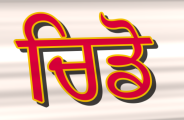
ਚਿਡੋ